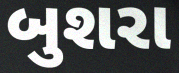
બુશરા